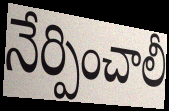
నేర్పించాలీ